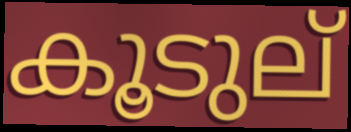
കൂടുല്